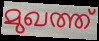
മുഖത്ത്